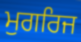
ਮੁਗਰਿਜ